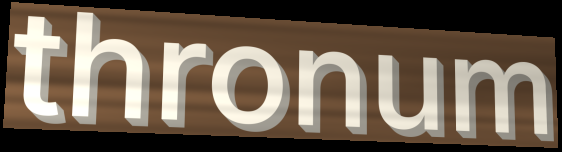
thronum